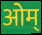
ओम्